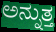
ಅನ್ನುತ್ತ